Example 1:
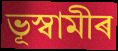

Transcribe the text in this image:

ভূস্বামীৰ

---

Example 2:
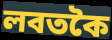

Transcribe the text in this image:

লবতকৈ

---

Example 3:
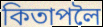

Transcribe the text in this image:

কিতাপলৈ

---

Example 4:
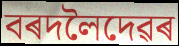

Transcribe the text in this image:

বৰদলৈদেৱৰ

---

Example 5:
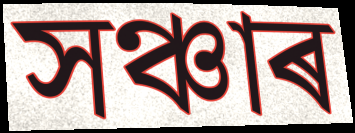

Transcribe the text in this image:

সঞ্চাৰ